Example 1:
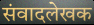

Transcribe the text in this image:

संवादलेखक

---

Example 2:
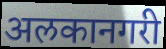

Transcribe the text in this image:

अलकानगरी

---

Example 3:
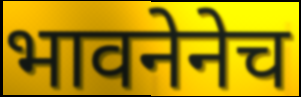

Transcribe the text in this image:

भावनेनेच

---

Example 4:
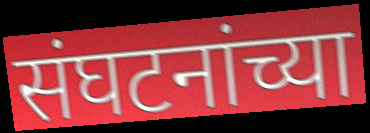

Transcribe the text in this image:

संघटनांच्या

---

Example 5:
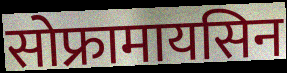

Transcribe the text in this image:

सोफ्रामायसिन